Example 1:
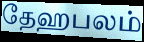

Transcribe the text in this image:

தேஹபலம்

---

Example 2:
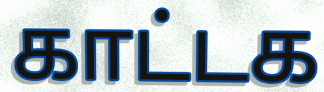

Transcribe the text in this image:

காட்டக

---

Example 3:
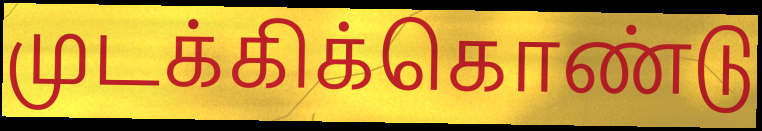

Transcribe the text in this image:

முடக்கிக்கொண்டு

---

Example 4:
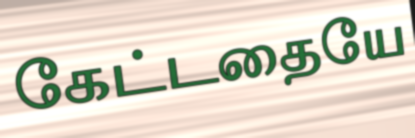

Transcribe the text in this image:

கேட்டதையே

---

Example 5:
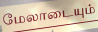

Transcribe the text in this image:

மேலாடையும்